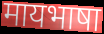
मायभाषा